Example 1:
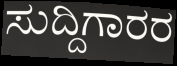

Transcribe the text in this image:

ಸುದ್ದಿಗಾರರ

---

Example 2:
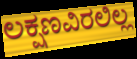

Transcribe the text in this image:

ಲಕ್ಷಣವಿರಲಿಲ್ಲ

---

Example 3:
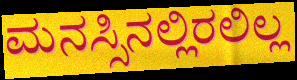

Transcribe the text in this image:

ಮನಸ್ಸಿನಲ್ಲಿರಲಿಲ್ಲ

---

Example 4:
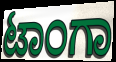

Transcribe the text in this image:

ಟಾಂಗಾ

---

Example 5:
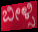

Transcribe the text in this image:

ಬೀಳ್ಸಿ